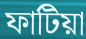
ফাটিয়া